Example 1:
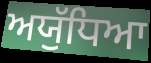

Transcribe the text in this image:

ਅਯੁੱਧਿਆ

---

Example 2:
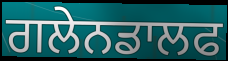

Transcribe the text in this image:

ਗਲੇਨਡਾਲਫ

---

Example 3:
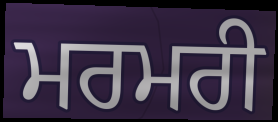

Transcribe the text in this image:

ਮਰਮਰੀ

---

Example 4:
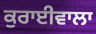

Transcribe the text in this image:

ਕੁਰਾਈਵਾਲਾ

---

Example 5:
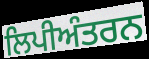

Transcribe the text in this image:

ਲਿਪੀਅੰਤਰਨ